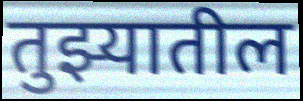
तुझ्यातील